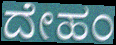
ದೇಹಂ